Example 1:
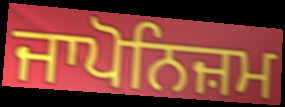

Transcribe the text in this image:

ਜਾਪੋਨਿਜ਼ਮ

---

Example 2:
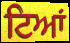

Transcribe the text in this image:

ਟਿਆਂ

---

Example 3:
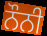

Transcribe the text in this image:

ਨੌਨੀ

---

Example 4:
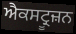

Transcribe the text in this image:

ਐਕਸਟ੍ਰੂਜ਼ਨ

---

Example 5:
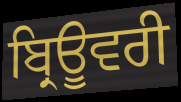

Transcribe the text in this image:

ਬ੍ਰਿਊਵਰੀ